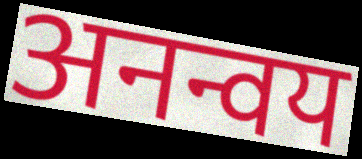
अनन्वय